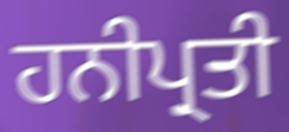
ਹਨੀਪ੍ਰਤੀ